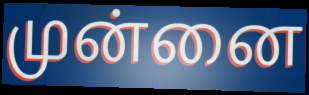
முன்னை